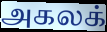
அகலக்